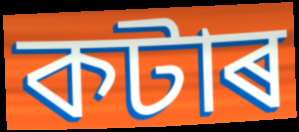
কটাৰ